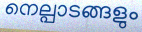
നെല്പാടങ്ങളും